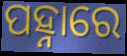
ପହ୍ନାରେ